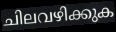
ചിലവഴിക്കുക